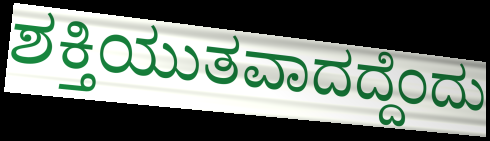
ಶಕ್ತಿಯುತವಾದದ್ದೆಂದು